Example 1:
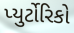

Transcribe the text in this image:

પ્યુર્ટોરિકો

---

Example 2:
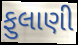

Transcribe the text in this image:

ફુલાણી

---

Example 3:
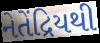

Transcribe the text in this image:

નેતેંદ્રિયથી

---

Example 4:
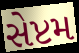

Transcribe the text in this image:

સેપ્ટમ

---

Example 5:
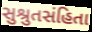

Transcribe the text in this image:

સુશ્રુતસંહિતા